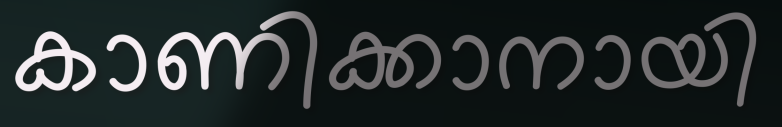
കാണിക്കാനായി